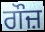
ਗੌਜ਼